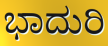
ಭಾದುರಿ